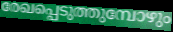
രേഖപ്പെടുത്തുമ്പോഴും